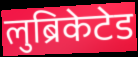
लुब्रिकेटेड